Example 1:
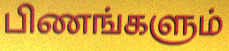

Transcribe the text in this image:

பிணங்களும்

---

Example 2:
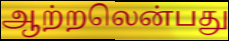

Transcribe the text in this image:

ஆற்றலென்பது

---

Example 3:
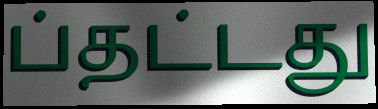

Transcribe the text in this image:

ப்தட்டது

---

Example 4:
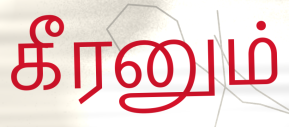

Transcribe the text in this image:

கீரனும்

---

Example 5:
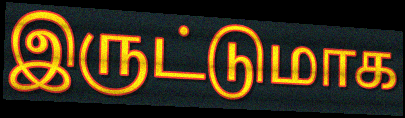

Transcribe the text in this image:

இருட்டுமாக